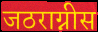
जठराग्नीस